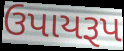
ઉપાયરૂપ